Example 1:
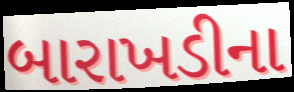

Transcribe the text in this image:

બારાખડીના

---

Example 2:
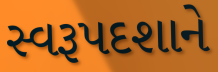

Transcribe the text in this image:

સ્વરૂપદશાને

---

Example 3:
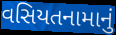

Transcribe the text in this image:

વસિયતનામાનું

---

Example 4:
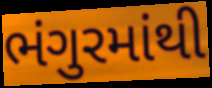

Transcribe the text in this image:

ભંગુરમાંથી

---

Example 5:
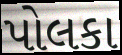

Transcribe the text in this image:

પોલકા